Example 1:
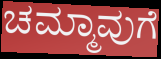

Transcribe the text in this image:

ಚಮ್ಮಾವುಗೆ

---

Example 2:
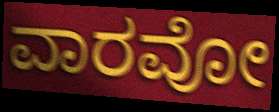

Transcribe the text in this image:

ವಾರವೋ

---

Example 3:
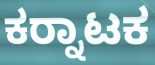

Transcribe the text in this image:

ಕರ‍್ನಾಟಕ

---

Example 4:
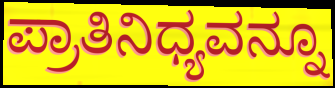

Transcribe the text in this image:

ಪ್ರಾತಿನಿಧ್ಯವನ್ನೂ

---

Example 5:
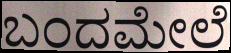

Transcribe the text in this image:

ಬಂದಮೇಲೆ